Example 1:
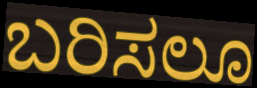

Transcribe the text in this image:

ಬರಿಸಲೂ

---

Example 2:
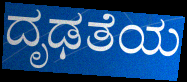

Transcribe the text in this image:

ದೃಢತೆಯ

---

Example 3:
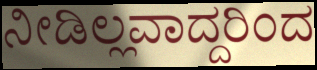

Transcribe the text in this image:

ನೀಡಿಲ್ಲವಾದ್ದರಿಂದ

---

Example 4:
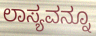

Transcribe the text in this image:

ಲಾಸ್ಯವನ್ನೂ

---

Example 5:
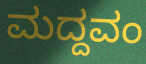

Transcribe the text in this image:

ಮದ್ದವಂ